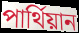
পার্থিয়ান